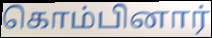
கொம்பினார்